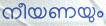
നീയണയും